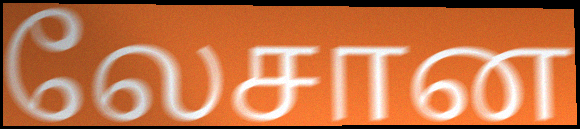
லேசான